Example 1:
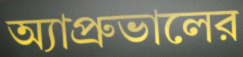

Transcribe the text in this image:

অ্যাপ্রুভালের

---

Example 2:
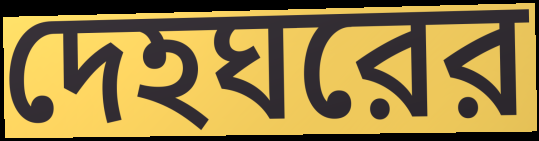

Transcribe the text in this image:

দেহঘরের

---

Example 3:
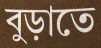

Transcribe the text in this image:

বুড়াতে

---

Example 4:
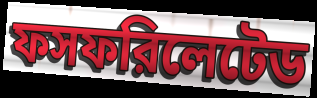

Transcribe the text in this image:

ফসফরিলেটেড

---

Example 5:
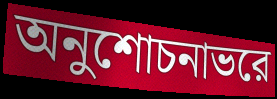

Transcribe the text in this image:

অনুশোচনাভরে